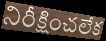
నిరీక్షించలేక